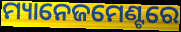
ମ୍ୟାନେଜମେଣ୍ଟରେ